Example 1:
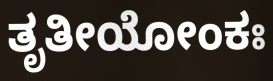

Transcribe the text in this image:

ತೃತೀಯೋಂಕಃ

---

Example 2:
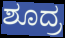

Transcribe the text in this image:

ಶೂದ್ರ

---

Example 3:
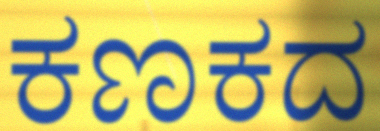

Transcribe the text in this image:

ಕಣಕದ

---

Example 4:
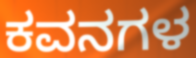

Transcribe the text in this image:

ಕವನಗಳ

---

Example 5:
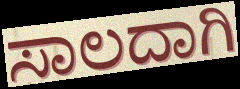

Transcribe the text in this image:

ಸಾಲದಾಗಿ